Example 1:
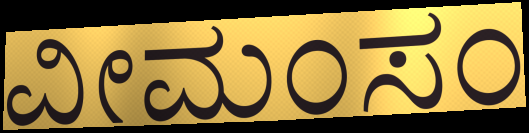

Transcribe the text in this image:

ವೀಮಂಸಂ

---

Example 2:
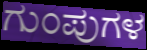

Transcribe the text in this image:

ಗುಂಪುಗಳ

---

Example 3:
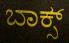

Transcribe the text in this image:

ಬಾಕ್ಸ್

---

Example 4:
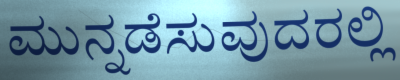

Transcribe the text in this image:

ಮುನ್ನಡೆಸುವುದರಲ್ಲಿ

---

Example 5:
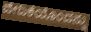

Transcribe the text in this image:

ವೇದಿಕೆಯೊಂದನ್ನು